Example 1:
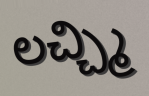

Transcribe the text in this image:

లచ్చ్మి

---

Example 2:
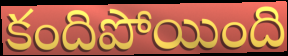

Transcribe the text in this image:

కందిపోయింది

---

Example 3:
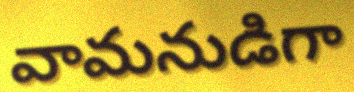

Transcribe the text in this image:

వామనుడిగా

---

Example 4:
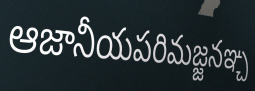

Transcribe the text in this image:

ఆజానీయపరిమజ్జనఞ్చ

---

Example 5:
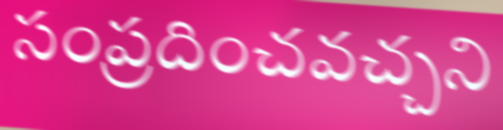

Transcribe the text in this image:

సంప్రదించవచ్చని